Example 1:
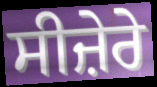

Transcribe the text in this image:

ਸੀਜ਼ੇਰੇ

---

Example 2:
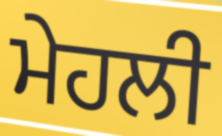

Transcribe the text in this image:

ਮੇਹਲੀ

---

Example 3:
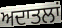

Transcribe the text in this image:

ਅਦਾਤਲਾਂ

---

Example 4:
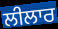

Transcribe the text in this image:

ਲੀਲਾਰ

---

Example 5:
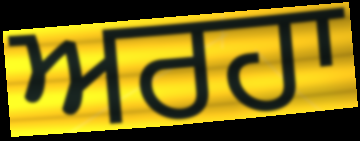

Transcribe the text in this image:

ਅਰਹਾ